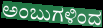
ಅಂಬುಗಳಿಂದ